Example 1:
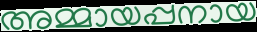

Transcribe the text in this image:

അമ്മായപ്പനായ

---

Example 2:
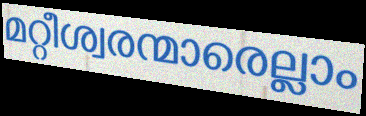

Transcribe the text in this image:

മറ്റീശ്വരന്മാരെല്ലാം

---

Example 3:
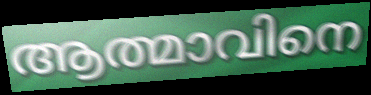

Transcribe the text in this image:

ആത്മാവിനെ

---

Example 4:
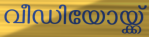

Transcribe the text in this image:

വീഡിയോയ്ക്ക്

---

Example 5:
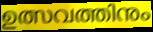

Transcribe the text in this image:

ഉത്സവത്തിനും